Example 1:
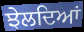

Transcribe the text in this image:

ਝੇਲਦਿਆਂ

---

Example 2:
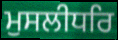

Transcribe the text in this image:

ਮੁਸਲੀਧਰਿ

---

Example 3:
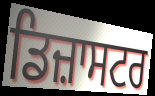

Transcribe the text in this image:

ਡਿਜ਼ਾਸਟਰ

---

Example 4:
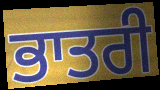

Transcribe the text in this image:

ਭਾਤਰੀ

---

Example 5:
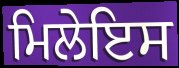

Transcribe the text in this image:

ਮਿਲੇਇਸ